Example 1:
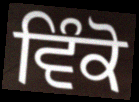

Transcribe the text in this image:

ਵਿੰਕੋ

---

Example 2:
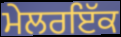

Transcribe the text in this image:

ਮੇਲਰਇੱਕ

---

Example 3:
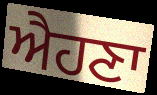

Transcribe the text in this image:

ਐਹਣਾ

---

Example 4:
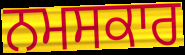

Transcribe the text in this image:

ਨਮਸਕਾਰ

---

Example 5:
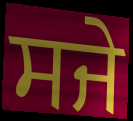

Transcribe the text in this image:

ਸਜੇ